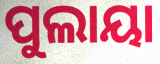
ପୁଲାୟା